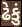
ઢેકું